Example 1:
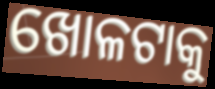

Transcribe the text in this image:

ଖୋଳଟାକୁ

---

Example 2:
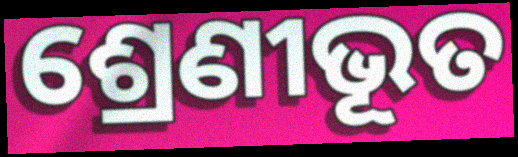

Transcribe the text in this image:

ଶ୍ରେଣୀଭୂତ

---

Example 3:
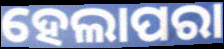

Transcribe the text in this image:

ହେଲାପରା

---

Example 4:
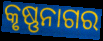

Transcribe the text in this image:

କୃଷ୍ଣନାଗର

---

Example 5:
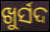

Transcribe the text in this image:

ଖୁର୍ସଦ